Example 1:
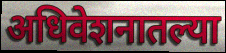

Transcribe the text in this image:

अधिवेशनातल्या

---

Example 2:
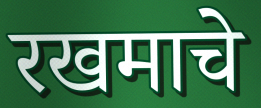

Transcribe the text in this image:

रखमाचे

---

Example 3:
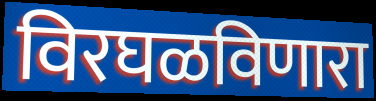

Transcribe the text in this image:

विरघळविणारा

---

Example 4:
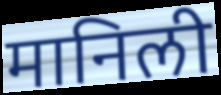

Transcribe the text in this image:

मानिली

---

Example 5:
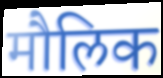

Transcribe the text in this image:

मौलिक